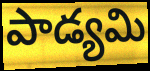
పాడ్యమి